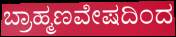
ಬ್ರಾಹ್ಮಣವೇಷದಿಂದ